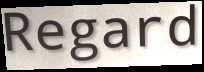
Regard